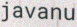
javanu